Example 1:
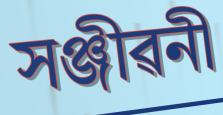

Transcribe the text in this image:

সঞ্জীৱনী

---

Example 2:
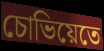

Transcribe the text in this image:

চোভিয়েতে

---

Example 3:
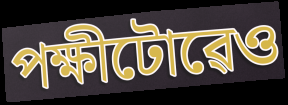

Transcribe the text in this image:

পক্ষীটোৱেও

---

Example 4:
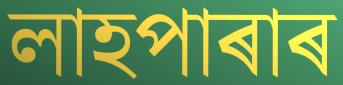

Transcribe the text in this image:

লাহপাৰাৰ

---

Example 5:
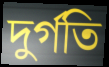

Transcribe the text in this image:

দুৰ্গতি